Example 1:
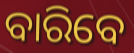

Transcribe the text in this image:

ବାରିବେ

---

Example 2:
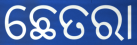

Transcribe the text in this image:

ଛେତରା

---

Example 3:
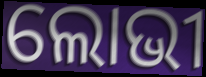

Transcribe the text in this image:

ଲୋଭୀ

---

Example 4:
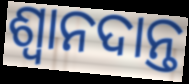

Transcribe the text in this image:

ଶ୍ଵାନଦାନ୍ତ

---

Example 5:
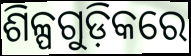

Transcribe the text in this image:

ଶିଳ୍ପଗୁଡ଼ିକରେ